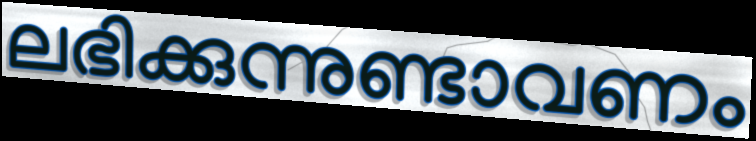
ലഭിക്കുന്നുണ്ടാവണം